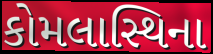
કોમલાસ્થિના